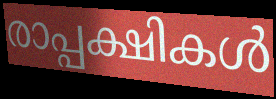
രാപ്പക്ഷികൾ